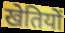
खेतियों